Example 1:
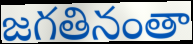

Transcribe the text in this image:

జగతినంతా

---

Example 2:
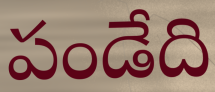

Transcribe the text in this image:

పండేది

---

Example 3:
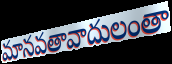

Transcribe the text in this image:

మానవతావాదులంతా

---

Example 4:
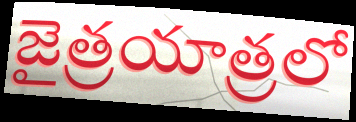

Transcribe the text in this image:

జైత్రయాత్రలో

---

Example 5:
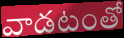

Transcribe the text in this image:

వాడటంతో